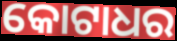
କୋଟାଧର